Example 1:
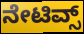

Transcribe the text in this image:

ನೇಟಿವ್ಸ್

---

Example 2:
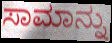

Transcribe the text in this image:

ಸಾಮಾನ್ನು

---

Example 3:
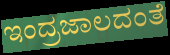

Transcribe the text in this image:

ಇಂದ್ರಜಾಲದಂತೆ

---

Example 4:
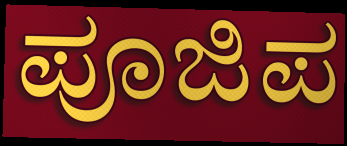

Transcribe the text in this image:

ಪೂಜಿಪ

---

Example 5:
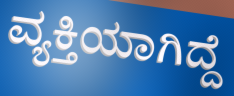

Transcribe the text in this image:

ವ್ಯಕ್ತಿಯಾಗಿದ್ದೆ